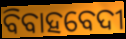
ବିବାହବେଦୀ